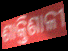
ଶାକ୍ତିଶାଳୀ